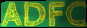
ADFC